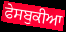
ਫੇਸਬੁਕੀਆ